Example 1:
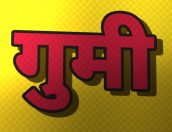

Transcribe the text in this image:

गुमी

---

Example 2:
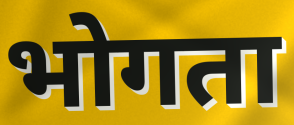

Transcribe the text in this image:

भोगता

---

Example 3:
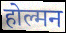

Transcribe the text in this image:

होल्मन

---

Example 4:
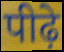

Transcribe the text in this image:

पीढ़े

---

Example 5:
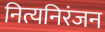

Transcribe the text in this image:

नित्यनिरंजन